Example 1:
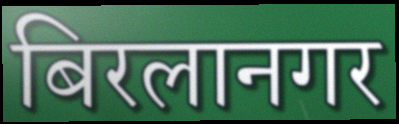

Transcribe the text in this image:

बिरलानगर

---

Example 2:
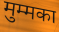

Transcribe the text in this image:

मुम्मका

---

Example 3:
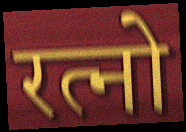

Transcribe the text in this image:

रत्नो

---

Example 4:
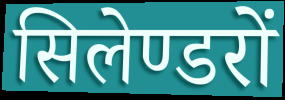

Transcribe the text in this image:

सिलेण्डरों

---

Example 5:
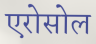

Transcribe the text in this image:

एरोसोल